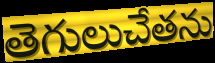
తెగులుచేతను